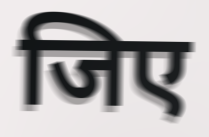
जिए